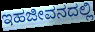
ಇಹಜೀವನದಲ್ಲಿ